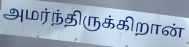
அமர்ந்திருக்கிறான்